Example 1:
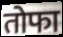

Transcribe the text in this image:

तोफा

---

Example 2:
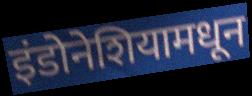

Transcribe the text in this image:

इंडोनेशियामधून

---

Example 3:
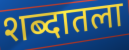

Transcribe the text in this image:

शब्दातला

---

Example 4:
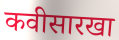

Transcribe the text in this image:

कवीसारखा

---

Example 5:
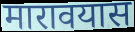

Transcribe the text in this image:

मारावयास